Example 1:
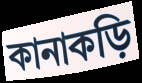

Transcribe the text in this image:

কানাকড়ি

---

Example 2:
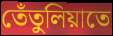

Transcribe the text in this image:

তেঁতুলিয়াতে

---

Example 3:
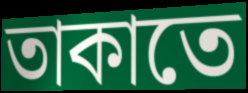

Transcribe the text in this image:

তাকাতে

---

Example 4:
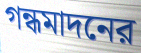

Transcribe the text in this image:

গন্ধমাদনের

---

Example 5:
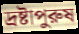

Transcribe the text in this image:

দ্রষ্টাপুরুষ